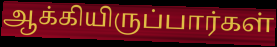
ஆக்கியிருப்பார்கள்